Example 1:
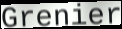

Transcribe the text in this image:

Grenier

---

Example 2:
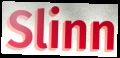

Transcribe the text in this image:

Slinn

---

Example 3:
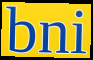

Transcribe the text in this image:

bni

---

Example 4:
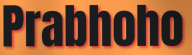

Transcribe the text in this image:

Prabhoho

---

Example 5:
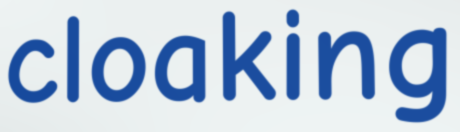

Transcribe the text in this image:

cloaking